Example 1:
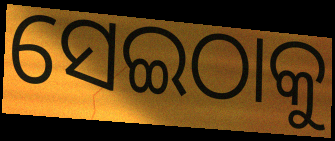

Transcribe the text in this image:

ସେଇଠାକୁ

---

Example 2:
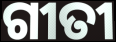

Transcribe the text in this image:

ଗୀତୀ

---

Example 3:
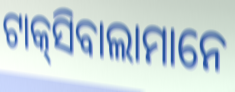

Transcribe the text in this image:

ଟାକ୍‌ସିବାଲାମାନେ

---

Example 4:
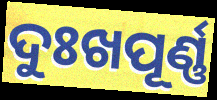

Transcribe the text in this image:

ଦୁଃଖପୂର୍ଣ୍ଣ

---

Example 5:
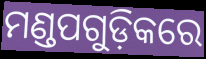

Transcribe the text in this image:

ମଣ୍ଡପଗୁଡ଼ିକରେ